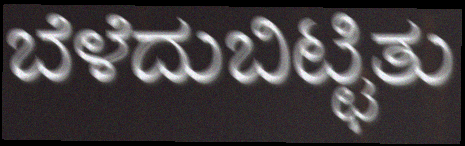
ಬೆಳೆದುಬಿಟ್ಟಿತು